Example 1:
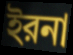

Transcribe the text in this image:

ইরনা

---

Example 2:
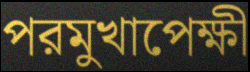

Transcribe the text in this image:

পরমুখাপেক্ষী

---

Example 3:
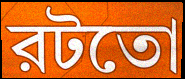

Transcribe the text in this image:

রটতো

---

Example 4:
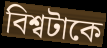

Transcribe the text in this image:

বিশ্বটাকে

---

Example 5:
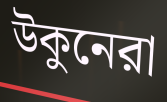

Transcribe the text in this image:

উকুনেরা